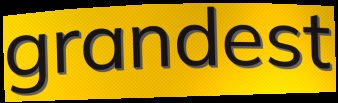
grandest